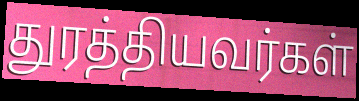
துரத்தியவர்கள்